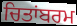
ਚਿਤਾਂਬਰਮ